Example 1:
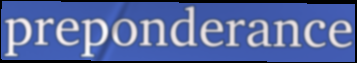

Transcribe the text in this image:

preponderance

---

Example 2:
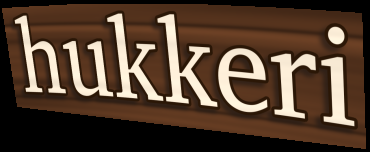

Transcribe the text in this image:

hukkeri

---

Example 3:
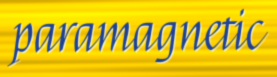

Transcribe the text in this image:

paramagnetic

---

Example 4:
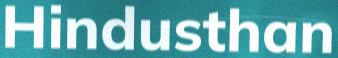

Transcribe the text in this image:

Hindusthan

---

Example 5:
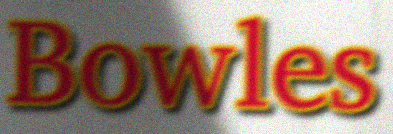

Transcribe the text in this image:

Bowles